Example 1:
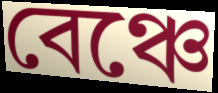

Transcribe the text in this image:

বেঞ্চে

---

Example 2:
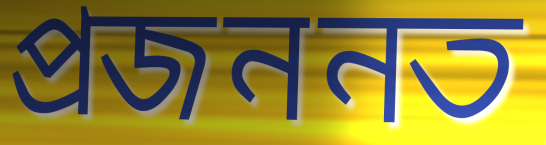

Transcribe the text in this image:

প্ৰজননত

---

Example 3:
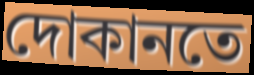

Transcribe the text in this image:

দোকানতে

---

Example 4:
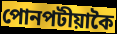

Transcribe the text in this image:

পোনপটীয়াকৈ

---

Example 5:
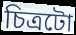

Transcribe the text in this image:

চিত্ৰটো